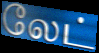
லேட்